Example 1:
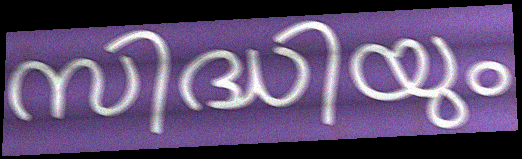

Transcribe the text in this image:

സിദ്ധിയും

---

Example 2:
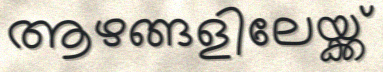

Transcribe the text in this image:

ആഴങ്ങളിലേയ്ക്ക്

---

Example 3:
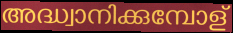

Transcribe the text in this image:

അദ്ധ്വാനിക്കുമ്പോള്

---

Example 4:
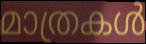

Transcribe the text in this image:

മാത്രകൾ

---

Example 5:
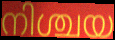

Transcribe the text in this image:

നിശ്ചയ